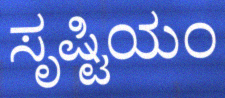
ಸೃಷ್ಟಿಯಂ